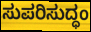
ಸುಪರಿಸುದ್ಧಂ